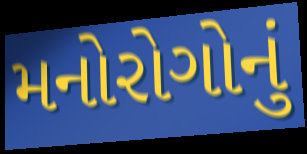
મનોરોગોનું